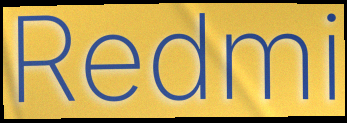
Redmi